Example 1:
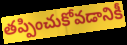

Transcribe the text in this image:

తప్పించుకోవడానికీ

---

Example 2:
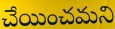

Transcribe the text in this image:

చేయించమని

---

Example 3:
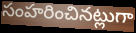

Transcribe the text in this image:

సంహరించినట్లుగా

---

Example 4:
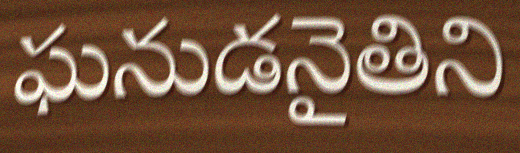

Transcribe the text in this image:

ఘనుడనైతిని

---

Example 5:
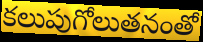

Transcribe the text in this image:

కలుపుగోలుతనంతో